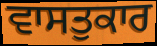
ਵਾਸਤੁਕਾਰ